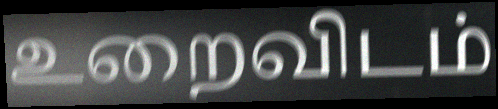
உறைவிடம்